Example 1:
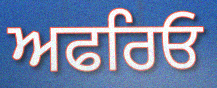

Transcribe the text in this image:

ਅਫਰਿਓ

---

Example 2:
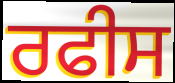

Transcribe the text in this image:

ਰਫੀਸ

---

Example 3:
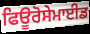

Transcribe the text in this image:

ਫਿਊਰੋਸੇਮਾਈਡ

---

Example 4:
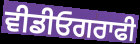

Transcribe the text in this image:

ਵੀਡੀਓਗਰਾਫੀ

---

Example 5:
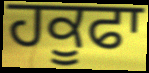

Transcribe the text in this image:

ਹਕੂਫਾ